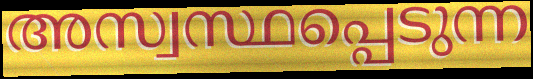
അസ്വസ്ഥപ്പെടുന്ന